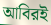
আবিরই